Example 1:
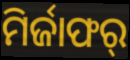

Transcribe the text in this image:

ମିର୍ଜାଫର୍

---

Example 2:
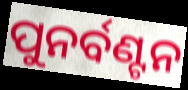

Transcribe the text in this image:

ପୁନର୍ବଣ୍ଟନ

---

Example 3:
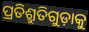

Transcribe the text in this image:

ପ୍ରତିଶ୍ରୁତିଗୁଡ଼ାକୁ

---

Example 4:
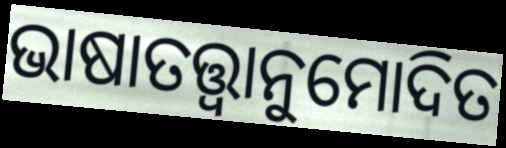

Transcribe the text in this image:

ଭାଷାତତ୍ତ୍ୱାନୁମୋଦିତ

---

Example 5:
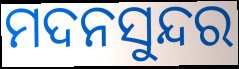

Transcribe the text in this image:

ମଦନସୁନ୍ଦର